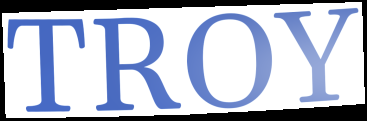
TROY